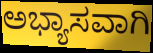
ಅಭ್ಯಾಸವಾಗಿ